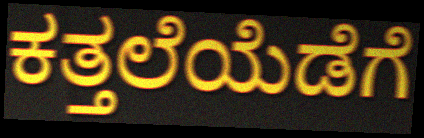
ಕತ್ತಲೆಯೆಡೆಗೆ